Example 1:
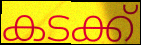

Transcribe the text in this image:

കടക്ക്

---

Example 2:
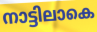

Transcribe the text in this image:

നാട്ടിലാകെ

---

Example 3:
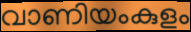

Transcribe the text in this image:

വാണിയംകുളം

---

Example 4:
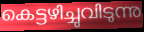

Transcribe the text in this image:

കെട്ടഴിച്ചുവിടുന്നു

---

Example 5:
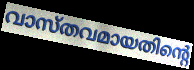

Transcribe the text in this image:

വാസ്തവമായതിന്റെ